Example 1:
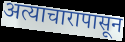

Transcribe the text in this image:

अत्याचारापासून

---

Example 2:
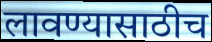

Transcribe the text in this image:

लावण्यासाठीच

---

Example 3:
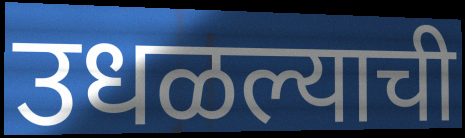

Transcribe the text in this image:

उधळल्याची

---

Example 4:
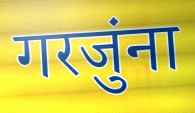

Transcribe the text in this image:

गरजुंना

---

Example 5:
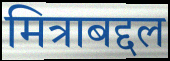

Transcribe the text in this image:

मित्राबद्दल